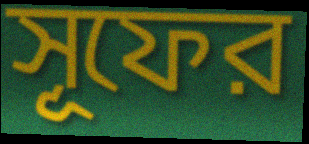
সূফের